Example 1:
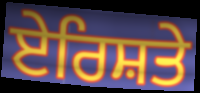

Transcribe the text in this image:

ਏਰਿਸ਼ਤੇ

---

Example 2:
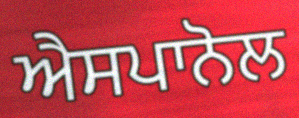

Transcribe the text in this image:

ਐਸਪਾਨੋਲ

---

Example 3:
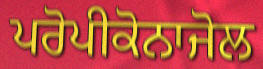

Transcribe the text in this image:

ਪਰੋਪੀਕੋਨਾਜੋਲ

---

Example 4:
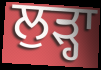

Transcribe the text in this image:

ਲੁੜ੍ਹਾ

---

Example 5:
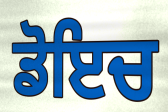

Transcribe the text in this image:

ਡੋਇਚ